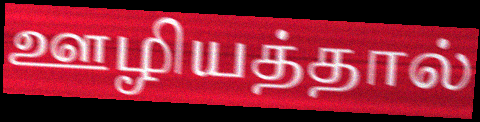
ஊழியத்தால்